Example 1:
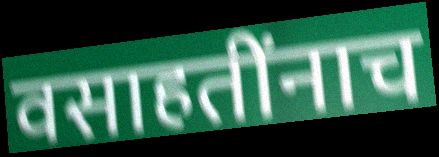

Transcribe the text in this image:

वसाहतींनाच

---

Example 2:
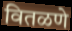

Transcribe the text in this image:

वितळणे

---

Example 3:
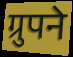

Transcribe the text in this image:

ग्रुपने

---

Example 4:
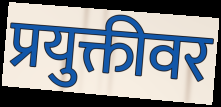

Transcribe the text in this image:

प्रयुक्तीवर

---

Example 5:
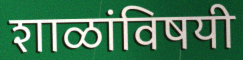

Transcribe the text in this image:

शाळांविषयी